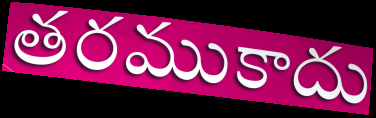
తరముకాదు